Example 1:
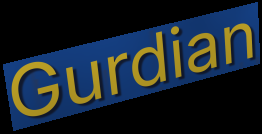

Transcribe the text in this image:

Gurdian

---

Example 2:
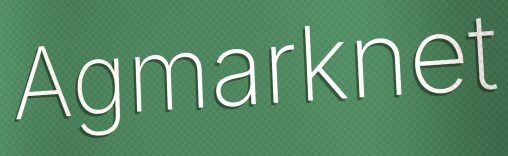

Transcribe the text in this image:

Agmarknet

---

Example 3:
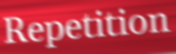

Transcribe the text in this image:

Repetition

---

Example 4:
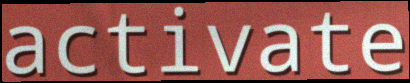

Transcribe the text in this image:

activate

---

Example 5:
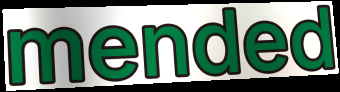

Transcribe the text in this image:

mended